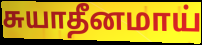
சுயாதீனமாய்